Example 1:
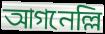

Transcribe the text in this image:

আগনেল্লি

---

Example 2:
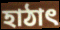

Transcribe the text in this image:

হাঠাৎ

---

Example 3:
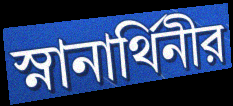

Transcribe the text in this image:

স্নানার্থিনীর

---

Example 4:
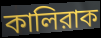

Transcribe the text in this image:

কালিরাক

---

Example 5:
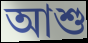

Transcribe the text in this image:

আশু